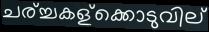
ചര്ച്ചകള്ക്കൊടുവില്